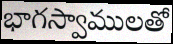
భాగస్వాములతో